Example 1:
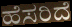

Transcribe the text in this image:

ಹೆಸರಿದೆ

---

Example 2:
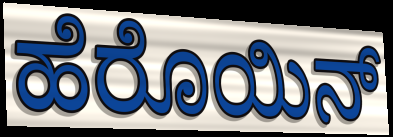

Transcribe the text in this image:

ಹೆರೊಯಿನ್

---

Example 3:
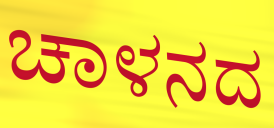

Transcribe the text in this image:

ಚಾಳನದ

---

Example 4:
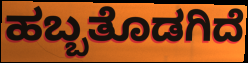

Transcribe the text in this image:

ಹಬ್ಬತೊಡಗಿದೆ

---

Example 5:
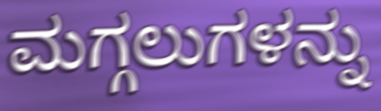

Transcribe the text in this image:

ಮಗ್ಗಲುಗಳನ್ನು